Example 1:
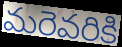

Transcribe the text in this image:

మరెవరికి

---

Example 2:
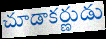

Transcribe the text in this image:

చూడాకర్ణుడు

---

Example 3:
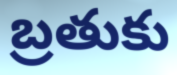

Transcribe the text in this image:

బ్రతుకు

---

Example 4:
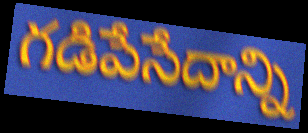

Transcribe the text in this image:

గడిపేసేదాన్ని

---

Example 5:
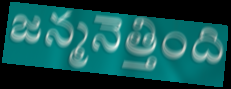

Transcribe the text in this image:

జన్మనెత్తింది